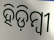
ହିଡ଼ିମ୍ବୀ